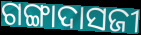
ଗଙ୍ଗାଦାସଜୀ